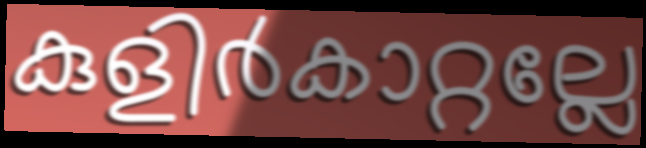
കുളിർകാറ്റല്ലേ